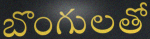
బొంగులతో